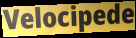
Velocipede